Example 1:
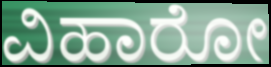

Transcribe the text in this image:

ವಿಹಾರೋ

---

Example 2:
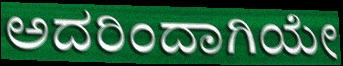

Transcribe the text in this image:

ಅದರಿಂದಾಗಿಯೇ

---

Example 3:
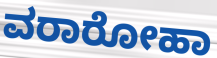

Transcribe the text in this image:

ವರಾರೋಹಾ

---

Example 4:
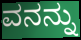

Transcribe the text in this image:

ವನನ್ನು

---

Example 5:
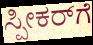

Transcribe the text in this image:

ಸ್ಪೀಕರ್‌ಗೆ